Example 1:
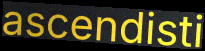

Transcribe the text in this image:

ascendisti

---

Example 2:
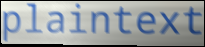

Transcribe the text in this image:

plaintext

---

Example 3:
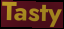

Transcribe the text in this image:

Tasty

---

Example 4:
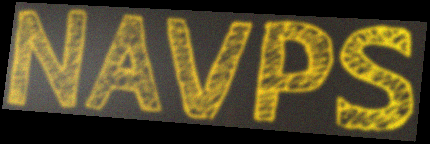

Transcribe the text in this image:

NAVPS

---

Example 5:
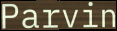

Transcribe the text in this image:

Parvin